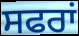
ਸਫਰਾਂ